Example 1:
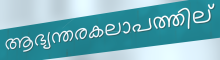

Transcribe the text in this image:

ആഭ്യന്തരകലാപത്തില്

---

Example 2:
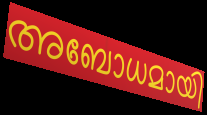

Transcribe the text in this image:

അബോധമായി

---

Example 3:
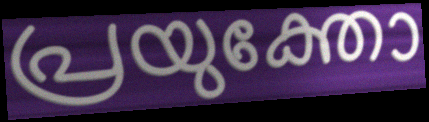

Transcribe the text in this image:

പ്രയുക്തോ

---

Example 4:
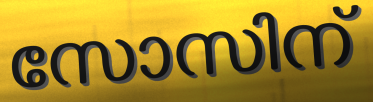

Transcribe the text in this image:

സോസിന്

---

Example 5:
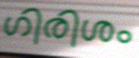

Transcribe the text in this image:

ഗിരിശം